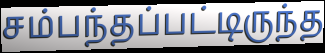
சம்பந்தப்பட்டிருந்த